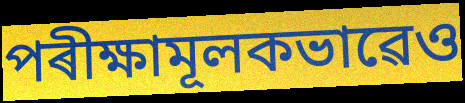
পৰীক্ষামূলকভাৱেও